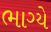
ભાગ્યે